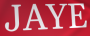
JAYE